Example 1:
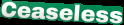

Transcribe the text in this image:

Ceaseless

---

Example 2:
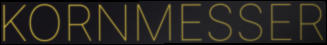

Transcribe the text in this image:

KORNMESSER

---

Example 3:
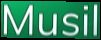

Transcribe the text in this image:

Musil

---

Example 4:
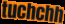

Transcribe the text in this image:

tuchchh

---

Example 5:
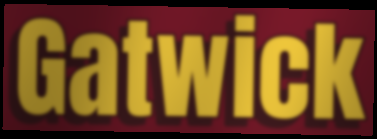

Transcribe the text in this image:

Gatwick